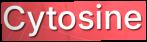
Cytosine